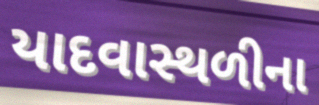
યાદવાસ્થળીના